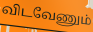
விடவேணும்